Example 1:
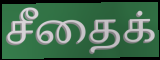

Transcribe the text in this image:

சீதைக்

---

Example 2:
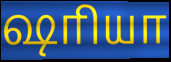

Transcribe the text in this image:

ஷரியா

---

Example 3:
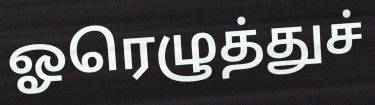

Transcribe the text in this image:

ஓரெழுத்துச்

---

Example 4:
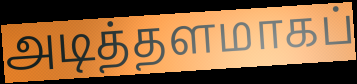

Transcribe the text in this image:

அடித்தளமாகப்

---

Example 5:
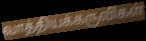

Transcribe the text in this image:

வாத்தியக்கருவிகள்